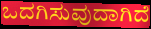
ಒದಗಿಸುವುದಾಗಿದೆ